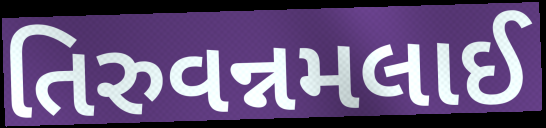
તિરુવન્નમલાઈ